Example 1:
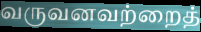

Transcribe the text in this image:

வருவனவற்றைத்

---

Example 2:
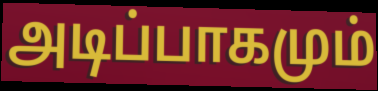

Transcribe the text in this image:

அடிப்பாகமும்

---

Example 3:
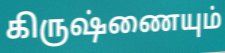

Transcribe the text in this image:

கிருஷ்ணையும்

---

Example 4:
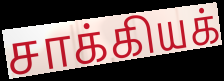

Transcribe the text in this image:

சாக்கியக்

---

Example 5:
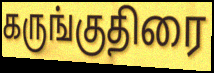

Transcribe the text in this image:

கருங்குதிரை